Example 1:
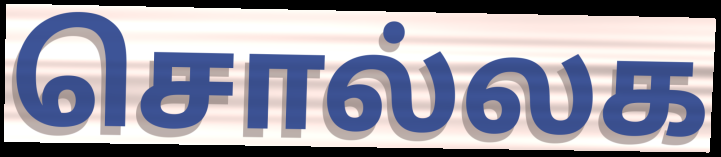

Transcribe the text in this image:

சொல்லக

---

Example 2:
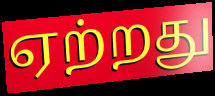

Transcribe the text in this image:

ஏற்றது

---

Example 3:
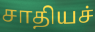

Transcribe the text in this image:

சாதியச்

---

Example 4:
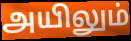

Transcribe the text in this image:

அயிலும்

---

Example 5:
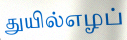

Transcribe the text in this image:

துயில்எழப்